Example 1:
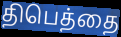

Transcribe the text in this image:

திபெத்தை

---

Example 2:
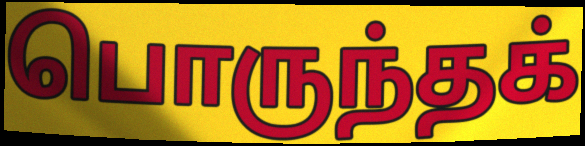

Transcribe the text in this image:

பொருந்தக்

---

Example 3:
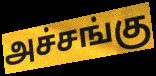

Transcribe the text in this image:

அச்சங்கு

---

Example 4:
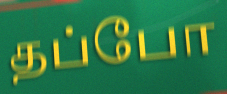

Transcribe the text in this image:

தப்போ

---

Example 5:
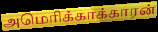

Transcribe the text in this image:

அமெரிக்காக்காரன்